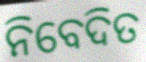
ନିବେଦିତ